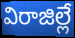
విరాజిల్లే